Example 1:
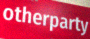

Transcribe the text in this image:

otherparty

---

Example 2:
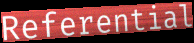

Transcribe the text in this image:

Referential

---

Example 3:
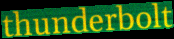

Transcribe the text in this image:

thunderbolt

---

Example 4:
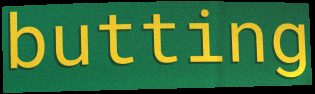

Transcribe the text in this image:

butting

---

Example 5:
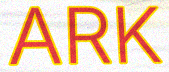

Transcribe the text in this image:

ARK